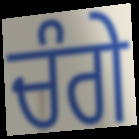
ਚੰਗੇ